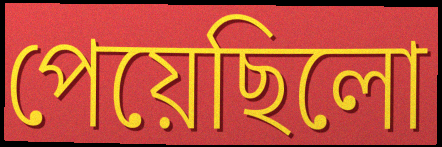
পেয়েছিলো